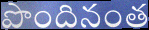
పొందినంత